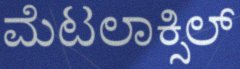
ಮೆಟಲಾಕ್ಸಿಲ್